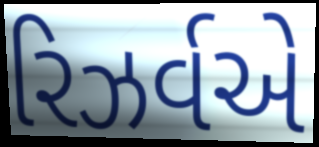
રિઝર્વએ